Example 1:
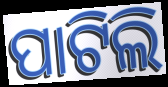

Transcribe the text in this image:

ପାଟିଲି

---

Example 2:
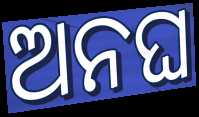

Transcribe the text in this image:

ଅନଘ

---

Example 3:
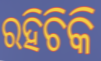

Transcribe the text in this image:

ରହିଚିକି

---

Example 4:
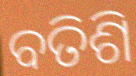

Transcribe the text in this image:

ବତିଶି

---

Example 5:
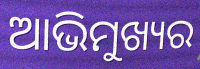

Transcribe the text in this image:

ଆଭିମୁଖ୍ୟର